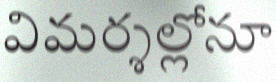
విమర్శల్లోనూ